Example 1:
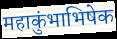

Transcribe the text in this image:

महाकुंभाभिषेक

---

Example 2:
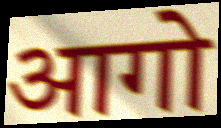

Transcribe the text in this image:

आगो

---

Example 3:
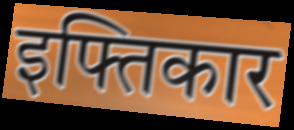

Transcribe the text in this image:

इफ्तिकार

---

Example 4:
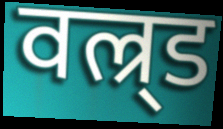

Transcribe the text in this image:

वल्र्ड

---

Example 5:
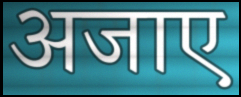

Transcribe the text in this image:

अजाए